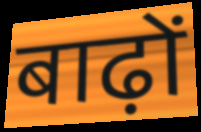
बाढ़ों